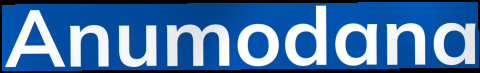
Anumodana